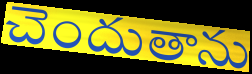
చెందుతాను